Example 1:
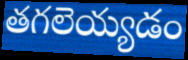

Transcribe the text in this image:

తగలెయ్యడం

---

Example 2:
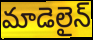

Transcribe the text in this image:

మాడెలైన్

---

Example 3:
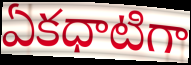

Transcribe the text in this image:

ఏకధాటిగా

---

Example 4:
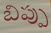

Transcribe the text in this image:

బిప్పు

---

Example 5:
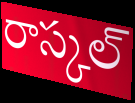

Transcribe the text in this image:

రాస్కల్